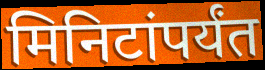
मिनिटांपर्यंत